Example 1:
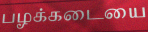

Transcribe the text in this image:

பழக்கடையை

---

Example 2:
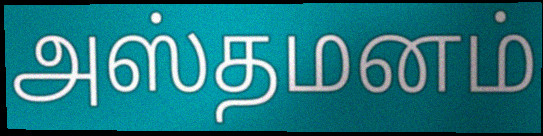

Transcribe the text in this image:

அஸ்தமனம்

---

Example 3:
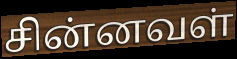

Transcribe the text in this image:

சின்னவள்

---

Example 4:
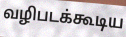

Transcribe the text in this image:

வழிபடக்கூடிய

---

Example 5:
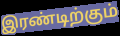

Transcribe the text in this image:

இரண்டிற்கும்